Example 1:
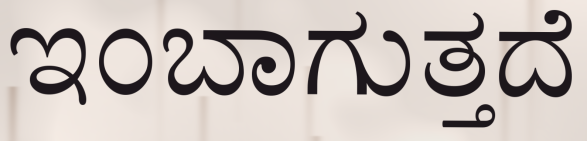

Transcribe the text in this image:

ಇಂಬಾಗುತ್ತದೆ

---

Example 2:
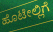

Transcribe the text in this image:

ಹೊಟೇಲ್ಲಿಗೆ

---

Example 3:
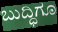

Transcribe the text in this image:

ಬುದ್ಧಿಗೂ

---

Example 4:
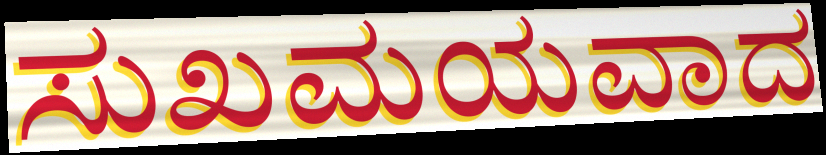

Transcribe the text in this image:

ಸುಖಮಯವಾದ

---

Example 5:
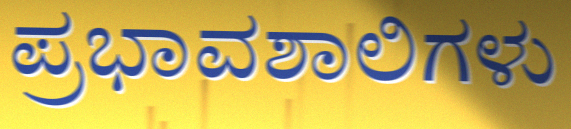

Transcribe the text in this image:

ಪ್ರಭಾವಶಾಲಿಗಳು